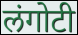
लंगोटी